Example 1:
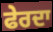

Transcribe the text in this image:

ਫੇਰਦਾ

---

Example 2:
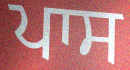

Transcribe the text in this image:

ਪਾਸ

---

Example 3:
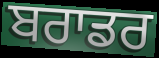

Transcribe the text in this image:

ਬਰਾਡਰ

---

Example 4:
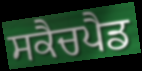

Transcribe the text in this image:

ਸਕੈਚਪੈਡ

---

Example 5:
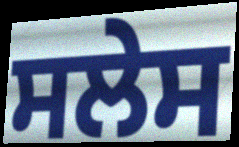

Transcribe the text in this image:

ਸਲੇਸ